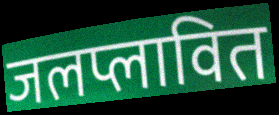
जलप्लावित